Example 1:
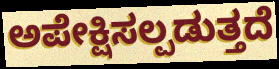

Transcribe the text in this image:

ಅಪೇಕ್ಷಿಸಲ್ಪಡುತ್ತದೆ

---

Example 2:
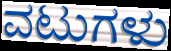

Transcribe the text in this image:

ವಟುಗಳು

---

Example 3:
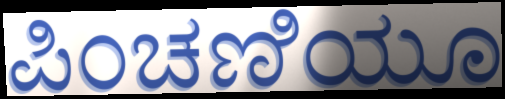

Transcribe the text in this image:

ಪಿಂಚಣಿಯೂ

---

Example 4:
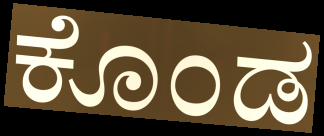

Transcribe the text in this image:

ಕೊಂಡ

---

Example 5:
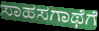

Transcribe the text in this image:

ಸಾಹಸಗಾಥೆಗೆ